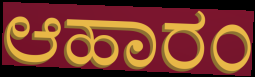
ಆಹಾರಂ